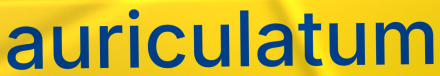
auriculatum